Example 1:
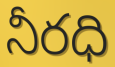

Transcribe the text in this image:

నీరధి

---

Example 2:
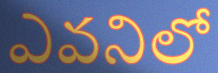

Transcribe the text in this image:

ఎవనిలో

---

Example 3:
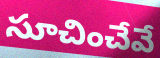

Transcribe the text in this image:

సూచించేవే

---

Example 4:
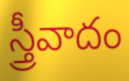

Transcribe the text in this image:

స్త్రీవాదం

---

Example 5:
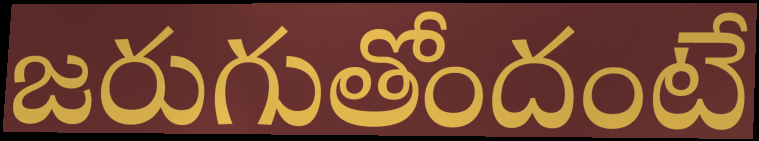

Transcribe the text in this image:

జరుగుతోందంటే